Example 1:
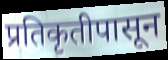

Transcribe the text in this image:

प्रतिकृतीपासून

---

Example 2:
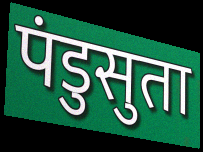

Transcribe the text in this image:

पंडुसुता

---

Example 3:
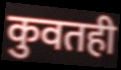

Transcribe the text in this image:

कुवतही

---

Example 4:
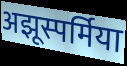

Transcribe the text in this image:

अझूस्पर्मिया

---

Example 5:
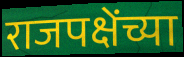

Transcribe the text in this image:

राजपक्षेंच्या